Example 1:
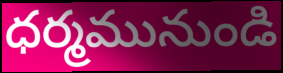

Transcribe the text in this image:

ధర్మమునుండి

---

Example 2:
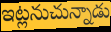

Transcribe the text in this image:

ఇట్లనుచున్నాడు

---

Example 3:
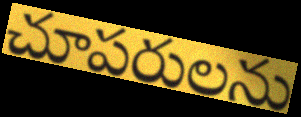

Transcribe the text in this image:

చూపరులను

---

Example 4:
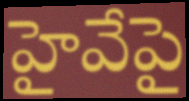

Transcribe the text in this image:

హైవేపై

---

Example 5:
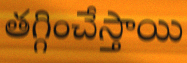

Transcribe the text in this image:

తగ్గించేస్తాయి